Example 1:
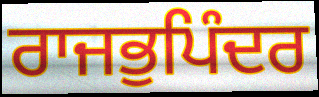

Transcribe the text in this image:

ਰਾਜਭੁਪਿੰਦਰ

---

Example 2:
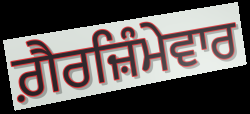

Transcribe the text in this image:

ਗ਼ੈਰਜ਼ਿੰਮੇਵਾਰ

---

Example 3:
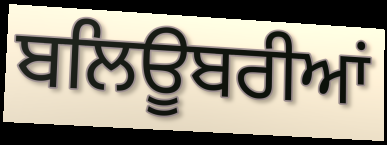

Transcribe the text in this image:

ਬਲਿਊਬਰੀਆਂ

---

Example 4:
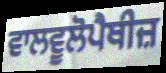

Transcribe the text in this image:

ਵਾਲਵੂਲੋਪੈਥੀਜ਼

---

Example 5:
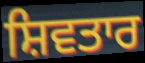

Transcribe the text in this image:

ਸ਼ਿਵਤਾਰ